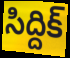
సిద్దిక్